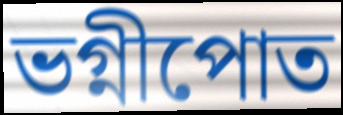
ভগ্নীপোত